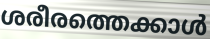
ശരീരത്തെക്കാൾ